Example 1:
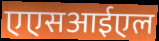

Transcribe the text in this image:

एएसआईएल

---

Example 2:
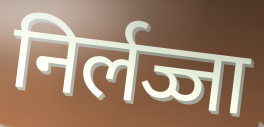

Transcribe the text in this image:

निर्लज्जा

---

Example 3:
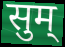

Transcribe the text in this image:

सुम्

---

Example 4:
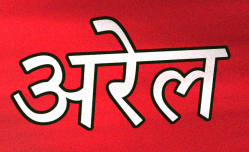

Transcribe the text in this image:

अरेल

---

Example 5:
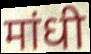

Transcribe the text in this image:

मांधी